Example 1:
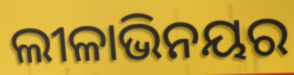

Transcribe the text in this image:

ଲୀଳାଭିନୟର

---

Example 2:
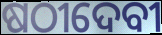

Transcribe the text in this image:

ଷଠୀଦେବୀ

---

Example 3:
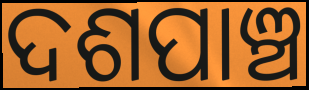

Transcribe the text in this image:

ଦଶପାଞ୍ଚ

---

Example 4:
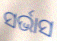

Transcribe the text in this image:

ସର୍ଭାସ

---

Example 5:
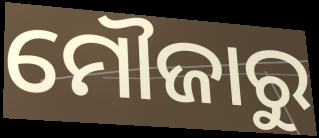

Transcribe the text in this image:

ମୌଜାରୁ